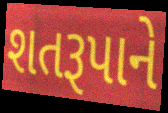
શતરૂપાને